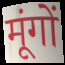
मूंगों